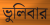
ভুলিবার